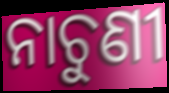
ନାଚୁଣୀ